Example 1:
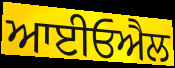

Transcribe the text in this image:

ਆਈਓਐਲ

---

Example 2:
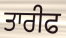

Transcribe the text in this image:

ਤਾਰੀਫ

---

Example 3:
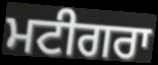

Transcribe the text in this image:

ਮਟੀਗਰਾ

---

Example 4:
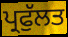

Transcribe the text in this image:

ਪ੍ਰਫੁੱਲਤ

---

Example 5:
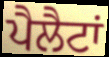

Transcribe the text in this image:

ਪੈਲੈਟਾਂ